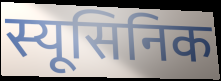
स्यूसिनिक